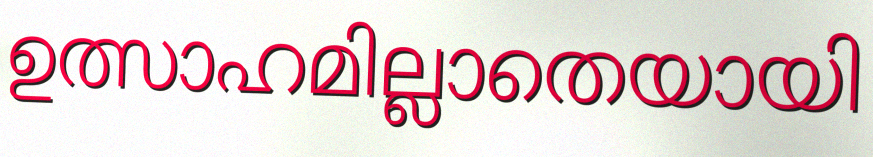
ഉത്സാഹമില്ലാതെയായി